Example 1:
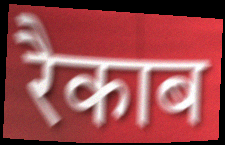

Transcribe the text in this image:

रैकाब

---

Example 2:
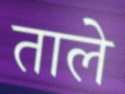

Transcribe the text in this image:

ताले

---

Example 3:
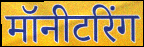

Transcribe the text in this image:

मॉनीटरिंग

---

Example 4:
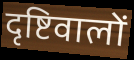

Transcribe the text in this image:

दृष्टिवालों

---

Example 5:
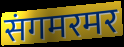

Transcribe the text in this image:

संगमरमर